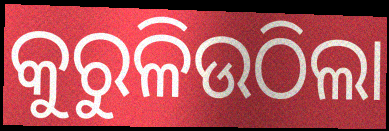
କୁରୁଳିଉଠିଲା